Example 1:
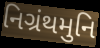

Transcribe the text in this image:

નિગ્રંથમુનિ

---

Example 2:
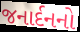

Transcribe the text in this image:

જનાર્દનનો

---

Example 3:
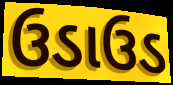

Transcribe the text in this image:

ઉડાઉડ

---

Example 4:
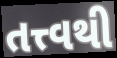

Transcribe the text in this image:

તત્ત્વથી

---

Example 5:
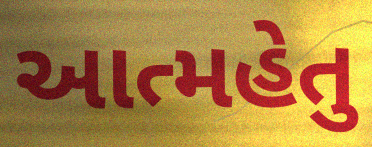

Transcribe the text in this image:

આત્મહેતુ